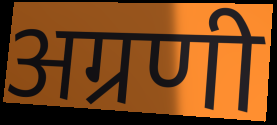
अग्रणी